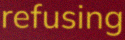
refusing